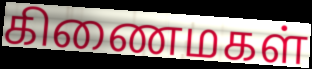
கிணைமகள்